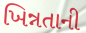
ખિન્નતાની